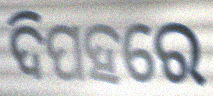
ଦିପହରେ